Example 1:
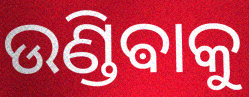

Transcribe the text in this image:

ଉଣ୍ଡିଵାକୁ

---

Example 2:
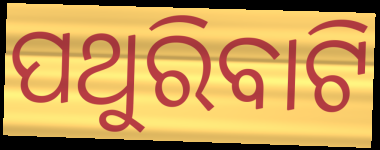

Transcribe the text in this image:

ପଥୁରିବାଟି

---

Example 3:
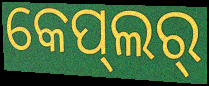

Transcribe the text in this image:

କେପ୍‌ଲର୍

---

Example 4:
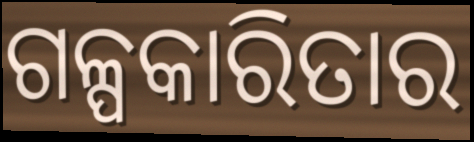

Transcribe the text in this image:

ଗଳ୍ପକାରିତାର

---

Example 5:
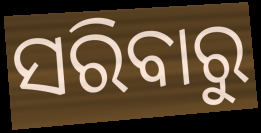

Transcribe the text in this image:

ସରିବାରୁ